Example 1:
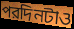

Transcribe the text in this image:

পরদিনটাও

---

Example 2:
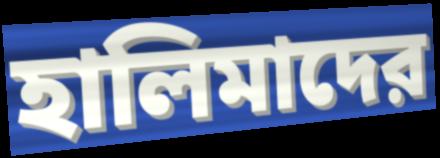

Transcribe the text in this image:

হালিমাদের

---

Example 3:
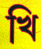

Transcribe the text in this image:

খি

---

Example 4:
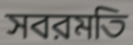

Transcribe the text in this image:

সবরমতি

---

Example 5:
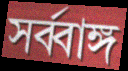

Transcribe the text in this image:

সর্ব্বাঙ্গ